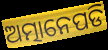
ଅତ୍ମାନେପଡି